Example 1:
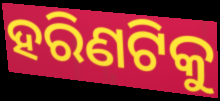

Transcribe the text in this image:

ହରିଣଟିକୁ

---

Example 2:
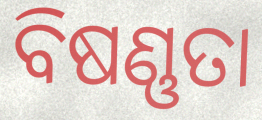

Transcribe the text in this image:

ବିଷଣ୍ଣତା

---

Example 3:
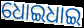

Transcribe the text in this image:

ଧୋଇଧାଇ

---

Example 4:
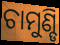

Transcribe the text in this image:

ଚାମୁଣ୍ଡି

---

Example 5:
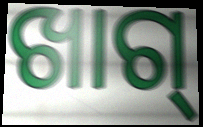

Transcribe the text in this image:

ଖାଗ୍